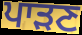
ਪਾੜਣ